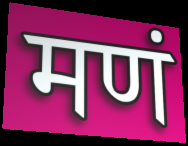
मणं